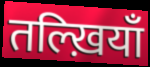
तल्ख़ियाँ